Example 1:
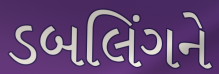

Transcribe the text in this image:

ડબલિંગને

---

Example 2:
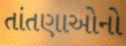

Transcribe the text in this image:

તાંતણાઓનો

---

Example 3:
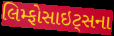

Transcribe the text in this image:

લિમ્ફોસાઇટ્સના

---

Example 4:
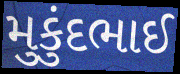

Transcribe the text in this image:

મુકુંદભાઈ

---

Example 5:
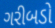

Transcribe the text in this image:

ગરીબડો